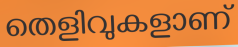
തെളിവുകളാണ്